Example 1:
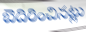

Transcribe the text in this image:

బెదిరించినట్లు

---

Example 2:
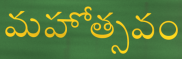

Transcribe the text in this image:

మహోత్సవం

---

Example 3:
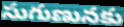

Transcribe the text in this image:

సుగుణునకు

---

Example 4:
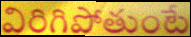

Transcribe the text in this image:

విరిగిపోతుంటే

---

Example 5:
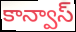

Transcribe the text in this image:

కాన్వాస్